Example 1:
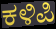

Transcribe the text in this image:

ಕಳಿಪಿ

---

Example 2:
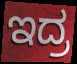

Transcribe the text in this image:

ಇದ್ರ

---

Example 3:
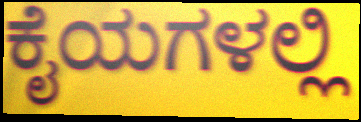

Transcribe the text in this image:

ಕೈಯಗಳಲ್ಲಿ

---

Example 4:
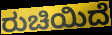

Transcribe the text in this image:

ರುಚಿಯಿದೆ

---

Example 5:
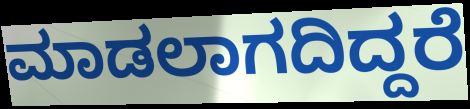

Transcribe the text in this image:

ಮಾಡಲಾಗದಿದ್ದರೆ